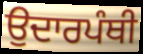
ਉਦਾਰਪੰਥੀ